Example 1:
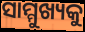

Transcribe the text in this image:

ସାମ୍ମୁଖ୍ୟକୁ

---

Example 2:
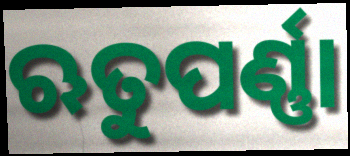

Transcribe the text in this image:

ଋତୁପର୍ଣ୍ଣା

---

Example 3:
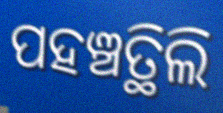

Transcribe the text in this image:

ପହଞ୍ଚତ୍ଥିଲି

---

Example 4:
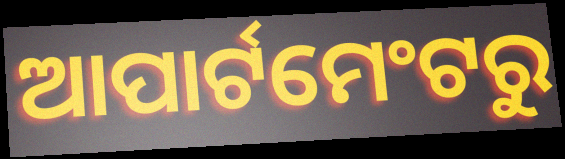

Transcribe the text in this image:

ଆପାର୍ଟମେଂଟରୁ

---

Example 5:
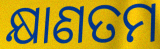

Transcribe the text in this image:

କ୍ଷାଣତମ